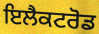
ਇਲੈਕਟਰੋਡ